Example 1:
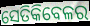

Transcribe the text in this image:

ସେତିକିବେଳର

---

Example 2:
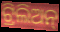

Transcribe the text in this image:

ଟ୍ରିଲିଅନ୍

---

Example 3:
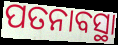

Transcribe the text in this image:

ପତନାବସ୍ଥା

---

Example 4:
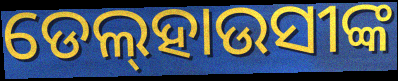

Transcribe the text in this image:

ଡେଲ୍‌ହାଉସୀଙ୍କ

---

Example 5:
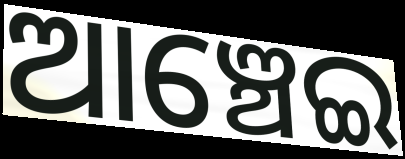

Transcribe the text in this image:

ଆଞ୍ଚେଇ